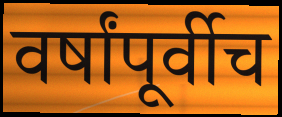
वर्षांपूर्वीच